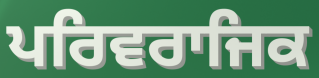
ਪਰਿਵਰਾਜਿਕ